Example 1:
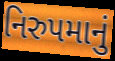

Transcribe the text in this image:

નિરુપમાનું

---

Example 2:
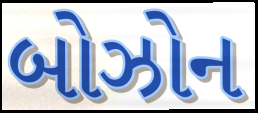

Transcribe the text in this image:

બોઝોન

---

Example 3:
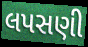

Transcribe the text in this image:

લપસણી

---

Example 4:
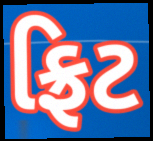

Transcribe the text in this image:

ફ્રિટ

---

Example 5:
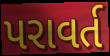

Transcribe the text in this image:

પરાવર્ત